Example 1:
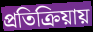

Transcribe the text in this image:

প্রতিক্রিয়ায়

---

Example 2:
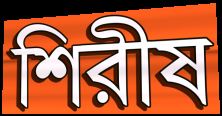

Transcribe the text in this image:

শিরীষ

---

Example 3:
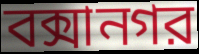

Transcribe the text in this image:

বক্সানগর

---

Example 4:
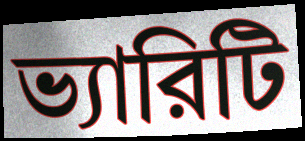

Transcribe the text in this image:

ভ্যারিটি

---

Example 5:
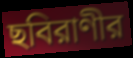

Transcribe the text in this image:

ছবিরাণীর